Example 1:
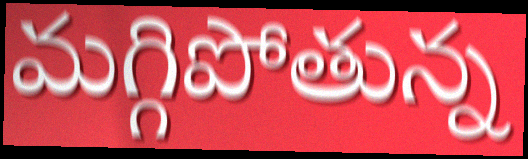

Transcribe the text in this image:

మగ్గిపోతున్న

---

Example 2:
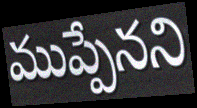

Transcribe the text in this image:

ముప్పేనని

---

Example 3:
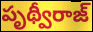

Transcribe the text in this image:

పృథ్వీరాజ్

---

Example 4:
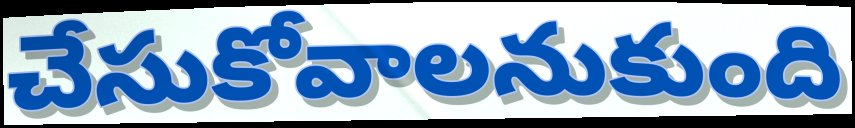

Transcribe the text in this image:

చేసుకోవాలనుకుంది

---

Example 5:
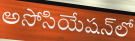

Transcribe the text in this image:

అసోసియేషన్‌లో